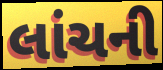
લાંચની